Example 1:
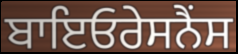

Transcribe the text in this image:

ਬਾਇਓਰੇਸਨੈਂਸ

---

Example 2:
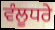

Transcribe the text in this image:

ਵੰਲੂਧਰੇ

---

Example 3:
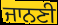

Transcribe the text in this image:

ਜਾਨਣੀ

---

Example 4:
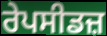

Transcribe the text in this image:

ਰੇਪਸੀਡਜ਼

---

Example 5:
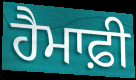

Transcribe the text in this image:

ਹੈਮਾਫ਼ੀ